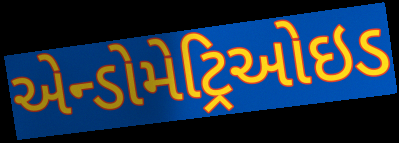
એન્ડોમેટ્રિઓઇડ